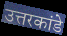
उत्तरकांडे